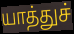
யாத்துச்